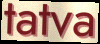
tatva